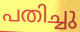
പതിച്ചു